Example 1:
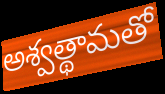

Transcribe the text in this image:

అశ్వత్థామతో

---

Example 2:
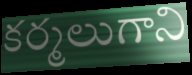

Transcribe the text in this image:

కర్మలుగాని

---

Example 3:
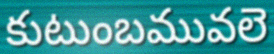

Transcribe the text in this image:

కుటుంబమువలె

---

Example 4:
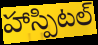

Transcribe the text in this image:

హాస్పిటల్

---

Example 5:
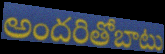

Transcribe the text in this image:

అందరితోబాటు